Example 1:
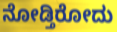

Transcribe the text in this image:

ನೋಡ್ತಿರೋದು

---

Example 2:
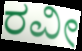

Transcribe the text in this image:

ರವೀ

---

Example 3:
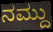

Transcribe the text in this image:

ನಮ್ದು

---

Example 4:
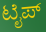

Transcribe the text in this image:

ಟೈಪ್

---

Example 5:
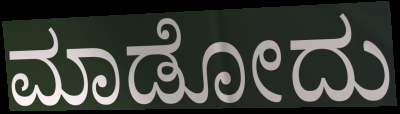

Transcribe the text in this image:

ಮಾಡೋದು